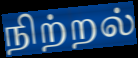
நிற்றல்